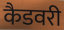
कैडवरी